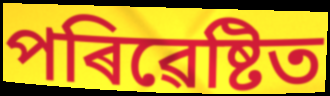
পৰিৱেষ্টিত